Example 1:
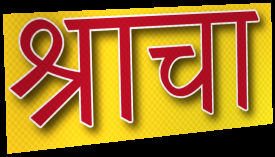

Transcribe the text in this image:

श्राचा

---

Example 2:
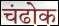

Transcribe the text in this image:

चंढोक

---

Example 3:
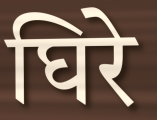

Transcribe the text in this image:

घिरे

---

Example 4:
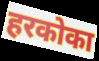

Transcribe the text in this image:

हरकोका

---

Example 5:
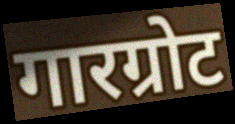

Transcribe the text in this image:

गारग्रोट